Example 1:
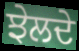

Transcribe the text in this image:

ਝੇਲਦੇ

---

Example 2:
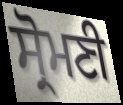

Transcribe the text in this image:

ਸ੍ਰੋਮਣੀ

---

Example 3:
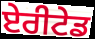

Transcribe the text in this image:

ਏਰੀਟੇਡ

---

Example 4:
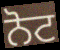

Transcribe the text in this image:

ਨੋਟ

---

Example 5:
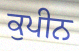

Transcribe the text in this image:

ਕੁਪੀਨ